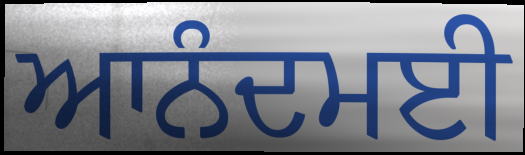
ਆਨੰਦਮਈ